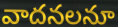
వాదనలనూ